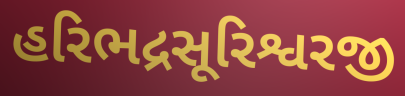
હરિભદ્રસૂરિશ્વરજી